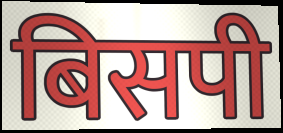
बिसपी